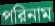
পরিনাম